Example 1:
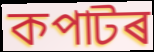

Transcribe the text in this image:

কপাটৰ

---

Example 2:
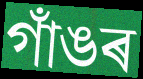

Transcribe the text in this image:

গাঁঙৰ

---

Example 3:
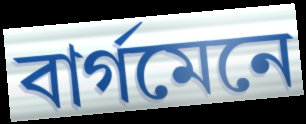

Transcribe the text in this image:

বাৰ্গমেনে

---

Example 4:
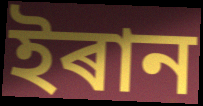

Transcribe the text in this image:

ইৰান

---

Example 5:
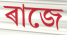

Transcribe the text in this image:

ৰাজে